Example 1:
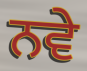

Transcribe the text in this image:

ਨਵੇ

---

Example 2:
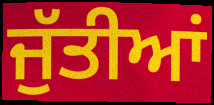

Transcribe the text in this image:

ਜੁੱਤੀਆਂ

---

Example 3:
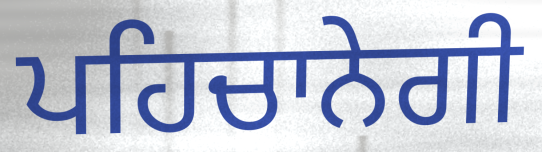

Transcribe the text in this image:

ਪਹਿਚਾਨੇਗੀ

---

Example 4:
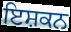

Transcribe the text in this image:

ਇਸ਼ਕਨ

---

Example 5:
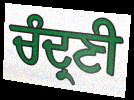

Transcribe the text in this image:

ਚੰਦ੍ਰਣੀ